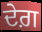
ਦੇਗ਼